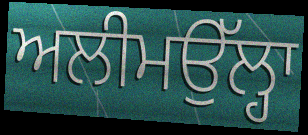
ਅਲੀਮਉੱਲ੍ਹਾ